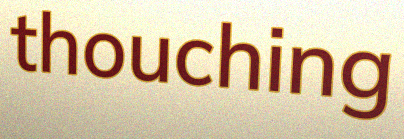
thouching